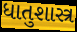
ધાતુશાસ્ત્ર